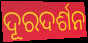
ଦୂରଦର୍ଶନ